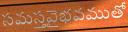
సమస్తవైభవముతో